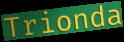
Trionda